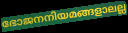
ഭോജനനിയമങ്ങളാലല്ല